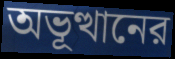
অভূত্থানের